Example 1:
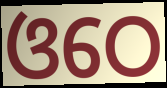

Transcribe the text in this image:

ଓଠେ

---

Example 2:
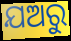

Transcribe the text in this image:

ଯଅରୁ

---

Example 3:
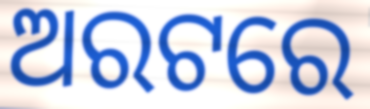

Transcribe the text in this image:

ଅରଟରେ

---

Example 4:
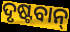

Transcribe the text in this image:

ଦୃଷ୍ଟବାନ୍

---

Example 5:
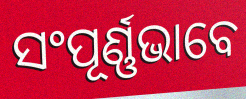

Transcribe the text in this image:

ସଂପୂର୍ଣ୍ଣଭାବେ